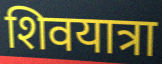
शिवयात्रा